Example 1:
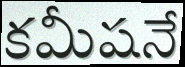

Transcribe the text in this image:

కమీషనే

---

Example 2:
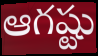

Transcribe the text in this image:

ఆగష్టు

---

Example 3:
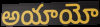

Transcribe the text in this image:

అయాయో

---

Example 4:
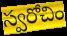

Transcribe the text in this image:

స్వరోచిం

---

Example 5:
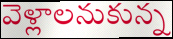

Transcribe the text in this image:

వెళ్లాలనుకున్న